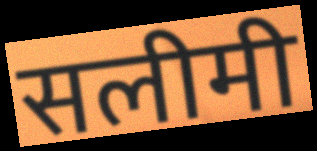
सलीमी